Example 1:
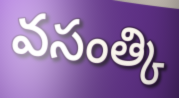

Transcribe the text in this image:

వసంత్కి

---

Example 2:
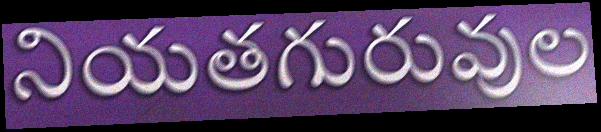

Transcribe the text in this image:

నియతగురువుల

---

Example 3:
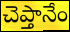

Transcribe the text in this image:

చెప్తానేం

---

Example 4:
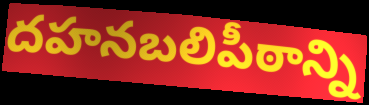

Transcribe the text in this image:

దహనబలిపీఠాన్ని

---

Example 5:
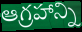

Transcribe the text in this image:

ఆగ్రహాన్ని